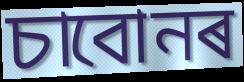
চাবোনৰ